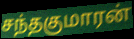
சந்தகுமாரன்